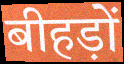
बीहड़ों